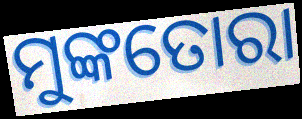
ମୁଙ୍କତୋରା